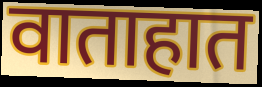
वाताहात